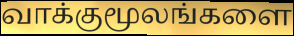
வாக்குமூலங்களை